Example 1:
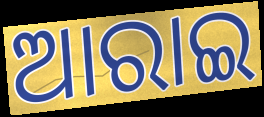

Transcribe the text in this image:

ଆରାଇ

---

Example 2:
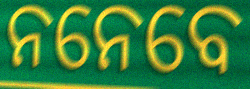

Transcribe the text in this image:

ନନେବେ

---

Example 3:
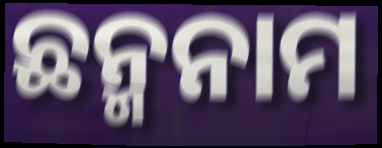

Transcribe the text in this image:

ଛନ୍ମନାମ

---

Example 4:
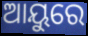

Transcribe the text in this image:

ଆୟୁରେ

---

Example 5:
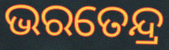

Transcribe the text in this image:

ଭରତେନ୍ଦ୍ର